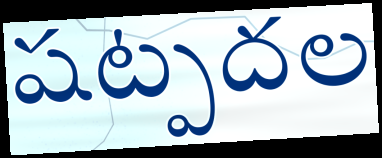
షట్పదల